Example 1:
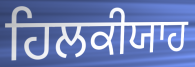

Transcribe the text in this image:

ਹਿਲਕੀਯਾਹ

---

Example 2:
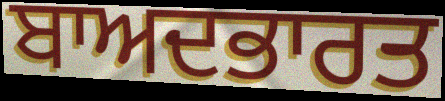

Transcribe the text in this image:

ਬਾਅਦਭਾਰਤ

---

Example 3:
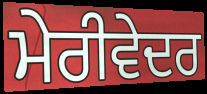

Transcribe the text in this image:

ਮੇਰੀਵੇਦਰ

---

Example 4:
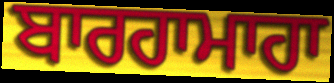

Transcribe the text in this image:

ਬਾਰਹਾਮਾਹਾ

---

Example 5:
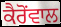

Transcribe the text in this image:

ਕੈਰੋਂਵਾਲ